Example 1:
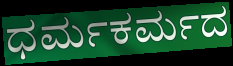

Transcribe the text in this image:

ಧರ್ಮಕರ್ಮದ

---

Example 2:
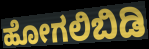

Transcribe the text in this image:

ಹೋಗಲಿಬಿಡಿ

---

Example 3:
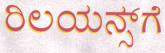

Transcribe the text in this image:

ರಿಲಯನ್ಸ್‌ಗೆ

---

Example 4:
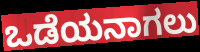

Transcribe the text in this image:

ಒಡೆಯನಾಗಲು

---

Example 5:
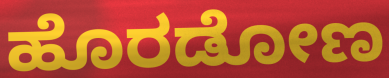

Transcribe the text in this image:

ಹೊರಡೋಣ